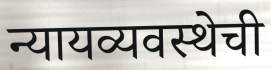
न्यायव्यवस्थेची